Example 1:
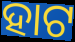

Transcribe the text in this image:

ହାଟ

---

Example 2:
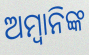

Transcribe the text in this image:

ଅମ୍ବାନିଙ୍କ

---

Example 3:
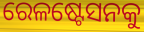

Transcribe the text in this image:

ରେଳଷ୍ଟେସନକୁ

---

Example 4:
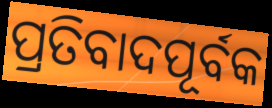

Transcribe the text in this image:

ପ୍ରତିବାଦପୂର୍ବକ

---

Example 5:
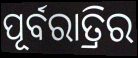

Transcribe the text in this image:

ପୂର୍ବରାତ୍ରିର